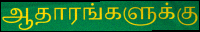
ஆதாரங்களுக்கு